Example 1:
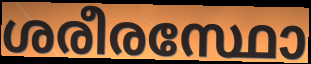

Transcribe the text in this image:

ശരീരസ്ഥോ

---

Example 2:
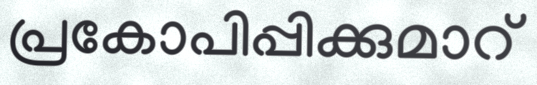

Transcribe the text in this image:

പ്രകോപിപ്പിക്കുമാറ്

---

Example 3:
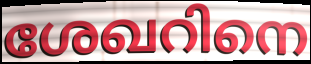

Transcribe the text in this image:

ശേഖറിനെ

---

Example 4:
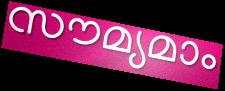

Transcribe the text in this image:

സൗമ്യമാം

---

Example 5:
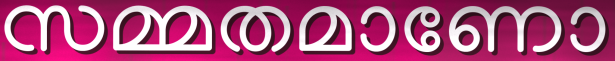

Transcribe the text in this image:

സമ്മതമാണോ